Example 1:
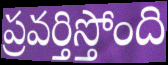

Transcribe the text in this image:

ప్రవర్తిస్తోంది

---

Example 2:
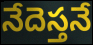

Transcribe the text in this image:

నేదెస్తనే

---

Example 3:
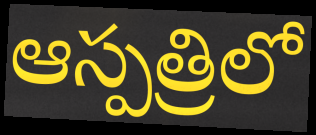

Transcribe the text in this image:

ఆస్పత్రిలో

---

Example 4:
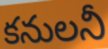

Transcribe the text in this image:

కనులనీ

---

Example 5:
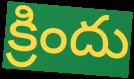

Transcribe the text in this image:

క్రిందు